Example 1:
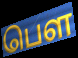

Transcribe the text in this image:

பெள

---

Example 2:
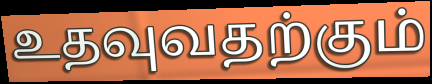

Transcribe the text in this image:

உதவுவதற்கும்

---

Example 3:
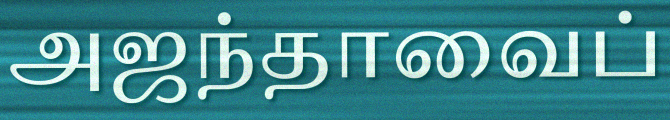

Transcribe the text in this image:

அஜந்தாவைப்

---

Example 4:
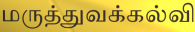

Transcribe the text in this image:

மருத்துவக்கல்வி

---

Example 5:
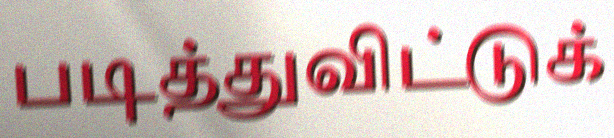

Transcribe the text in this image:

படித்துவிட்டுக்